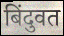
बिंदुवत